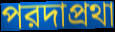
পরদাপ্রথা